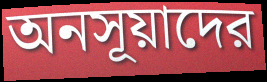
অনসূয়াদের